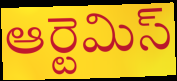
ఆర్టెమిస్